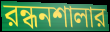
রন্ধনশালার